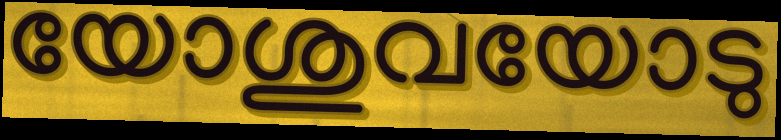
യോശുവയോടു